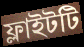
ফ্লাইটটি